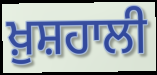
ਖ਼ੁਸ਼ਹਾਲੀ